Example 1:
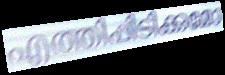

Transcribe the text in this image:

എത്തിപ്പിടിക്കുമോ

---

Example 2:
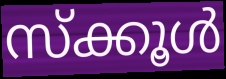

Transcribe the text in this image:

സ്ക്കൂൾ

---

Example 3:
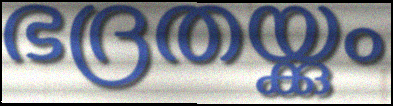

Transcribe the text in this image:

ഭദ്രതയ്ക്കും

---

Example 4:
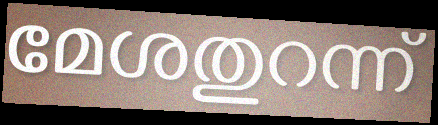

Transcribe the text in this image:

മേശതുറന്ന്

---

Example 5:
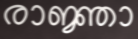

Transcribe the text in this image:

രാജ്ഞാ